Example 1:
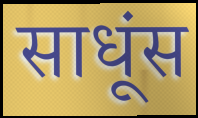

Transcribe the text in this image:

साधूंस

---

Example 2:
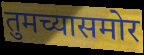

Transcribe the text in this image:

तुमच्यासमोर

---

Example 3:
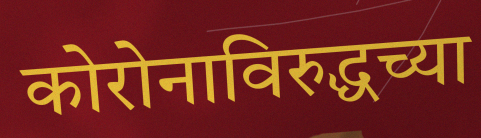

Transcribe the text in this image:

कोरोनाविरुद्धच्या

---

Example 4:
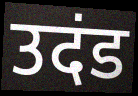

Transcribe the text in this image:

उदंड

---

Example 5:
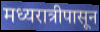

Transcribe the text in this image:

मध्यरात्रीपासून